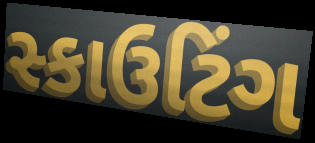
સ્કાઉટિંગ